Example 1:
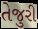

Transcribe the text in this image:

તેજુરી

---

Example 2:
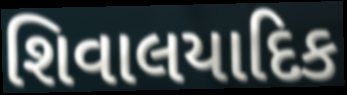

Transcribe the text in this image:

શિવાલયાદિક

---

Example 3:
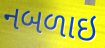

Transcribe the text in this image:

નબળાઇ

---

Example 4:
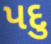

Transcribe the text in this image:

પદુ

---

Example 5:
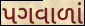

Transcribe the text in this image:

પગવાળાં